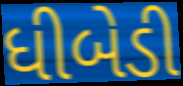
ધીબેડી